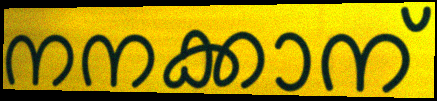
നനക്കാന്